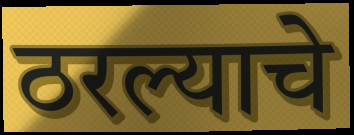
ठरल्याचे